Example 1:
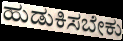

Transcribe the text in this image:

ಹುಡುಕಿಸಬೇಕು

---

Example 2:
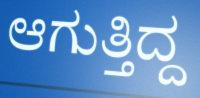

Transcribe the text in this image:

ಆಗುತ್ತಿದ್ದ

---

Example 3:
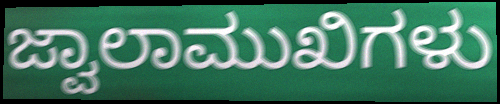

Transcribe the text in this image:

ಜ್ವಾಲಾಮುಖಿಗಳು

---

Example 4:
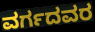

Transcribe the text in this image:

ವರ್ಗದವರ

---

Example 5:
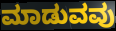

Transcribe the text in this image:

ಮಾಡುವವು